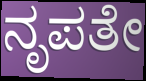
ನೃಪತೇ